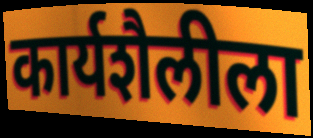
कार्यशैलीला